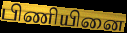
பிணியினை